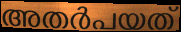
അതർപയത്